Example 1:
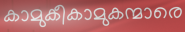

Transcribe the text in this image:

കാമുകീകാമുകന്മാരെ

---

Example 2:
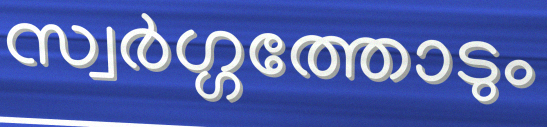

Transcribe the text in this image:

സ്വർഗ്ഗത്തോടും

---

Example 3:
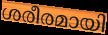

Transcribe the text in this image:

ശരീരമായി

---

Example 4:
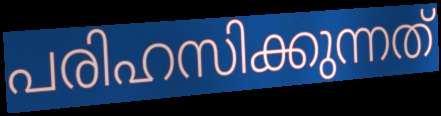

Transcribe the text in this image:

പരിഹസിക്കുന്നത്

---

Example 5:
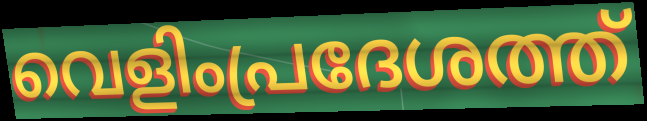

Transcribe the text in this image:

വെളിംപ്രദേശത്ത്